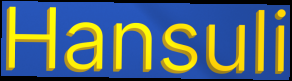
Hansuli